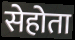
सेहोता